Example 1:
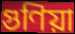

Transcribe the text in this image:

গুণিয়া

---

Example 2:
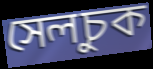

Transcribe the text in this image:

সেলচুক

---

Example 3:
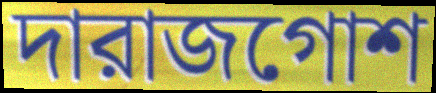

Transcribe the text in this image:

দারাজগোশ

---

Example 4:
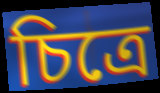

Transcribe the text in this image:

চিত্রে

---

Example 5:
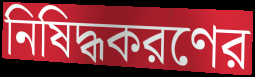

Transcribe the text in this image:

নিষিদ্ধকরণের